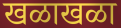
खळाखळा